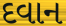
દવાન